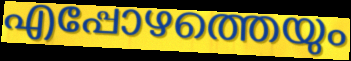
എപ്പോഴത്തെയും